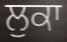
ਲੁਕਾ